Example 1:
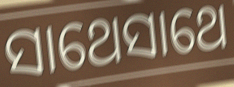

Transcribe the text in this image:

ସାଥେସାଥେ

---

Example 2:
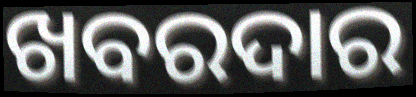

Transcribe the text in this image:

ଖବରଦାର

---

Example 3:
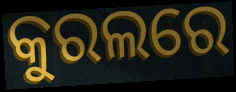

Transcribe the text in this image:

କୁରଲରେ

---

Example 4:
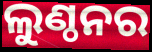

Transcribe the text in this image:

ଲୁଣ୍ଠନର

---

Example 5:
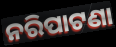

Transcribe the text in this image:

ନରିପାଟଣା